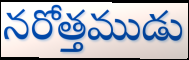
నరోత్తముడు